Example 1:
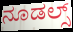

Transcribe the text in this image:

ನೂಡಲ್ಸ್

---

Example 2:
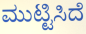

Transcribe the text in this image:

ಮುಟ್ಟಿಸಿದೆ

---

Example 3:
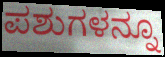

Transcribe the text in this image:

ಪಶುಗಳನ್ನೂ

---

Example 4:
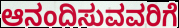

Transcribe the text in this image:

ಆನಂದಿಸುವವರಿಗೆ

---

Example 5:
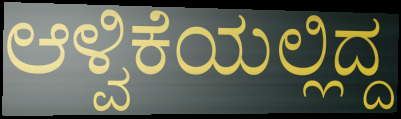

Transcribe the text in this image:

ಆಳ್ವಿಕೆಯಲ್ಲಿದ್ದ